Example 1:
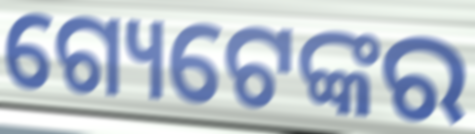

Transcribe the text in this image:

ଗ୍ୟେଟେଙ୍କର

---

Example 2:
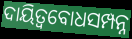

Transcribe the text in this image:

ଦାୟିତ୍ୱବୋଧସମ୍ପନ୍ନ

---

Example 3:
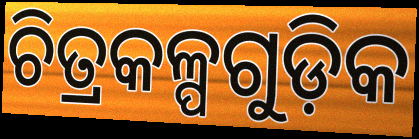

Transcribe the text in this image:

ଚିତ୍ରକଳ୍ପଗୁଡ଼ିକ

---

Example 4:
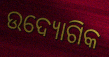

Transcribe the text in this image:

ଉଦ୍ୟୋଗିକ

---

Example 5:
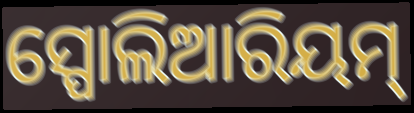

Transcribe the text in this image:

ସ୍ପୋଲିଆରିୟମ୍